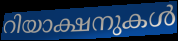
റിയാക്ഷനുകൾ